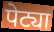
पेट्या